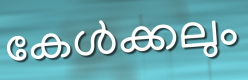
കേൾക്കലും